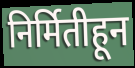
निर्मितीहून